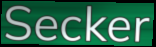
Secker